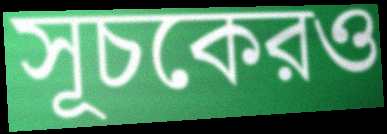
সূচকেরও